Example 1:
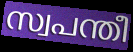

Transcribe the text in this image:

സ്വപന്തീ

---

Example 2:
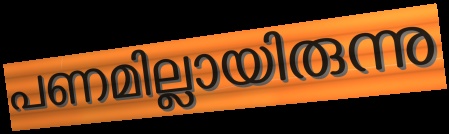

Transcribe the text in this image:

പണമില്ലായിരുന്നു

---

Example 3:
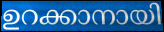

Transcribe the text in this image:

ഉറക്കാനായി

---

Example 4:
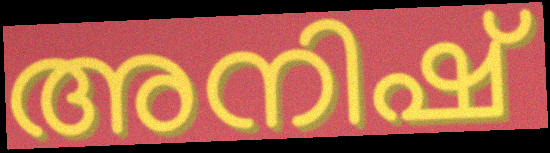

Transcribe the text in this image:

അനിഷ്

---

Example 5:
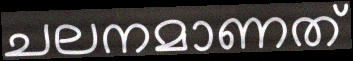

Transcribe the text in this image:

ചലനമാണത്